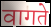
वागते